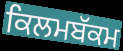
ਕਿਲਮਬੱਕਮ